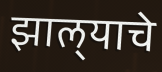
झाल्याचे